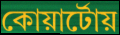
কোয়ার্টোয়